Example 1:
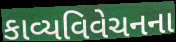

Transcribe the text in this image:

કાવ્યવિવેચનના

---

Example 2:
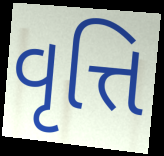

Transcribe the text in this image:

વૃત્તિ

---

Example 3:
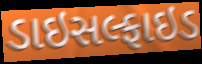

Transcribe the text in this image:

ડાઇસલ્ફાઇડ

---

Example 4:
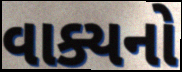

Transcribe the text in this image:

વાક્યનો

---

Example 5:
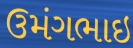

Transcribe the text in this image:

ઉમંગભાઇ